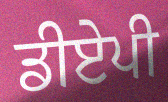
ਡੀਏਪੀ